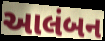
આલંબન